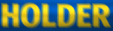
HOLDER